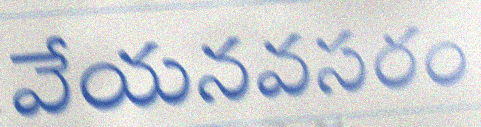
వేయనవసరం